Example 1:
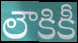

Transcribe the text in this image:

లౌకికీ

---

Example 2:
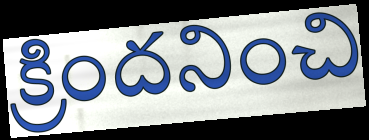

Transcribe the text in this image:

క్రిందనించి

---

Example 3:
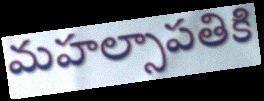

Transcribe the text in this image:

మహల్సాపతికి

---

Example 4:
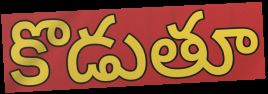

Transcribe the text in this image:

కొడుతూ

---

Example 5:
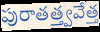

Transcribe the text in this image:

పురాతత్త్వవేత్త